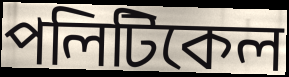
পলিটিকেল